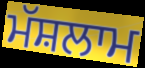
ਮੱਸ਼ਲਾਮ